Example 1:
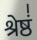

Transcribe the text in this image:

श्रेष्ठं॑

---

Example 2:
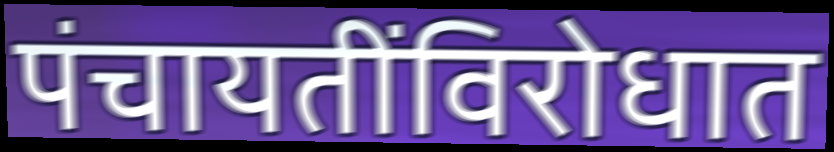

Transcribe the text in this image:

पंचायतींविरोधात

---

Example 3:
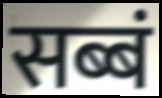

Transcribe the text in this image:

सब्बं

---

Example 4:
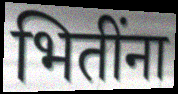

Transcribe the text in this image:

भितींना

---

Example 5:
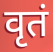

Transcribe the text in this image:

वृतं